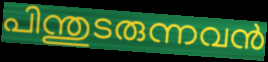
പിന്തുടരുന്നവൻ